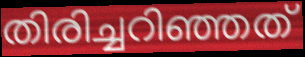
തിരിച്ചറിഞ്ഞത്